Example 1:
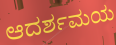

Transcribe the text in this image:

ಆದರ್ಶಮಯ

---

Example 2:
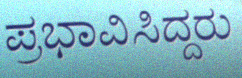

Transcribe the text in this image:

ಪ್ರಭಾವಿಸಿದ್ದರು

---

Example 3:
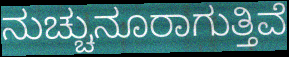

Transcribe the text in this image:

ನುಚ್ಚುನೂರಾಗುತ್ತಿವೆ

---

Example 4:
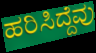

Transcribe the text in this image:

ಹರಿಸಿದ್ದೆವು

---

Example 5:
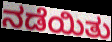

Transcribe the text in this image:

ನಡೆಯಿತು